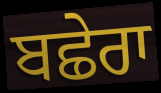
ਬਛੇਰਾ